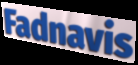
Fadnavis